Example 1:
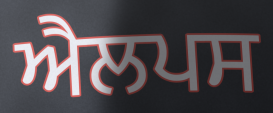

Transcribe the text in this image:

ਐਲਪਸ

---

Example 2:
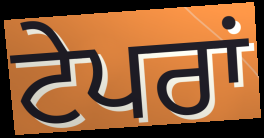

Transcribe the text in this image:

ਟੇਪਰਾਂ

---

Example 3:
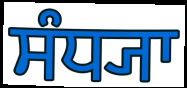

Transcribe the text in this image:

ਸੰਧ੍ਯਾ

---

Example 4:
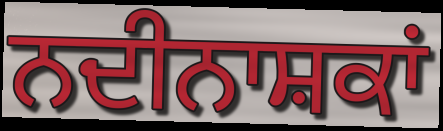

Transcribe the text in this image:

ਨਦੀਨਾਸ਼ਕਾਂ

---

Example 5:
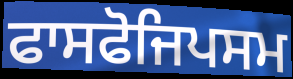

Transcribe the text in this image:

ਫਾਸਫੋਜਿਪਸਮ